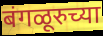
बंगळूरुच्या